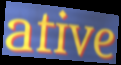
ative